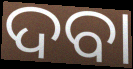
ଦବା